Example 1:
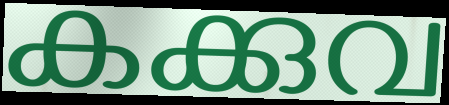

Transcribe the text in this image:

കക്കുവ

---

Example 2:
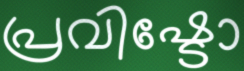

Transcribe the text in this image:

പ്രവിഷ്ടോ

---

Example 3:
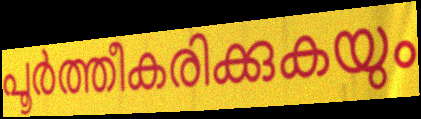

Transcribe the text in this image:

പൂർത്തീകരിക്കുകയും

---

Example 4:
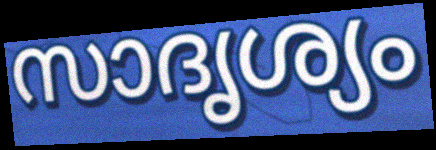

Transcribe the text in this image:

സാദൃശ്യം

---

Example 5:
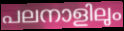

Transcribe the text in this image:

പലനാളിലും